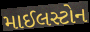
માઈલસ્ટોન